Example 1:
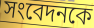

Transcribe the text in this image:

সংবেদনকে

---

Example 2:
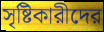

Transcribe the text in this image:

সৃষ্টিকারীদের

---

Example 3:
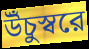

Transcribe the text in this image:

উঁচুস্বরে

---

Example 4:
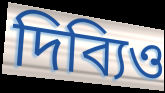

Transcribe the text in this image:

দিব্যিও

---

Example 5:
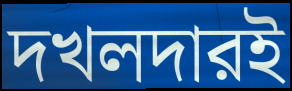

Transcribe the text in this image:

দখলদারই